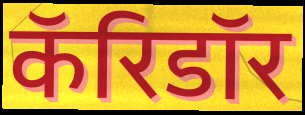
कॅरिडॉर